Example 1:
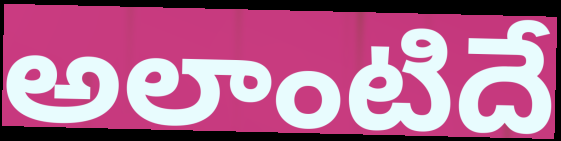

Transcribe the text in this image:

అలాంటిదే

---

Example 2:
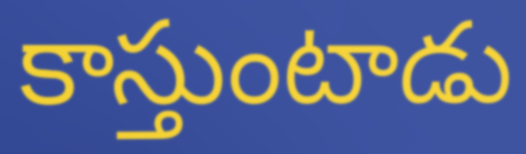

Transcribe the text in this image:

కాస్తుంటాడు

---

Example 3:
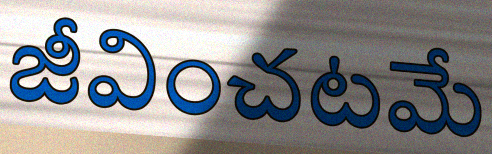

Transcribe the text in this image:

జీవించటమే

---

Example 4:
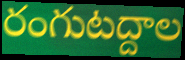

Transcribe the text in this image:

రంగుటద్దాల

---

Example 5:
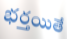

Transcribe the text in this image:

భర్తయితే